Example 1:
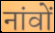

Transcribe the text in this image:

नांवों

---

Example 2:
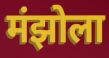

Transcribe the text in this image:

मंझोला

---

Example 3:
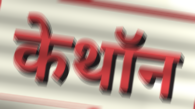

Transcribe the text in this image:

केथॉन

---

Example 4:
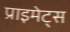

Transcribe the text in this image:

प्राइमेट्स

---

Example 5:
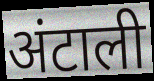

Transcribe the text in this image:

अंटाली